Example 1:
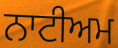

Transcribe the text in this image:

ਨਾਟੀਅਮ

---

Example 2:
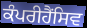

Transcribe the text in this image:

ਕੰਪਰੀਹੈਂਸਿਵ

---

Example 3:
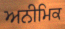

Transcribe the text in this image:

ਅਨੀਮਿਕ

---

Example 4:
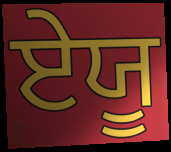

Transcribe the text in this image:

ਏਯੂ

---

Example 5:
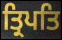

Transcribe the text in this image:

ਤ੍ਰਿਪਤਿ